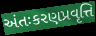
અંતઃકરણપ્રવૃત્તિ